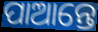
ପାଆନ୍ତେ